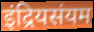
इंद्रियसंयम